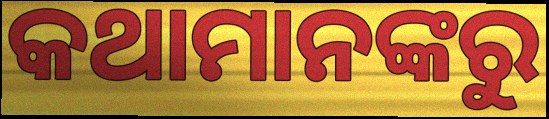
କଥାମାନଙ୍କରୁ